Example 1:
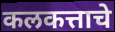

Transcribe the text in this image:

कलकत्ताचे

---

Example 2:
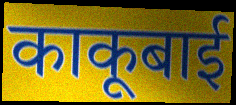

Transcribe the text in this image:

काकूबाई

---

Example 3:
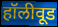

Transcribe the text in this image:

हॉलीवूड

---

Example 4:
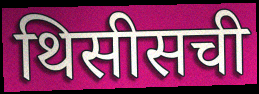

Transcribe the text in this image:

थिसीसची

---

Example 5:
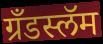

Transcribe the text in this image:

ग्रँडस्लॅम